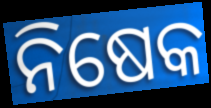
ନିଷେକ